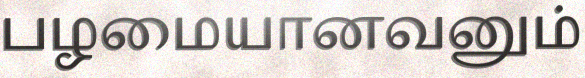
பழமையானவனும்